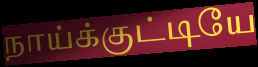
நாய்க்குட்டியே